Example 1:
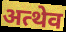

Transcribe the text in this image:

अत्थेव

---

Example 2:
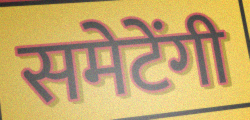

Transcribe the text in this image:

समेटेंगी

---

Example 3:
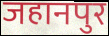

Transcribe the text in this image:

जहानपुर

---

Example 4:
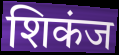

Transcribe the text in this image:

शिकंज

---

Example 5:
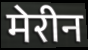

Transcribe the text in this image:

मेरीन